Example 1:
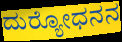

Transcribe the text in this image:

ದುರ‍್ಯೋಧನನ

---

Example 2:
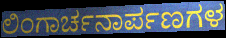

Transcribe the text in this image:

ಲಿಂಗಾರ್ಚನಾರ್ಪಣಗಳ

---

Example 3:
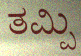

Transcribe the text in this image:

ತಮ್ಪಿ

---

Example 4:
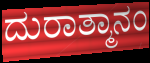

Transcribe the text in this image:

ದುರಾತ್ಮಾನಂ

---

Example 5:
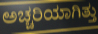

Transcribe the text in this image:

ಅಚ್ಚರಿಯಾಗಿತ್ತು